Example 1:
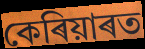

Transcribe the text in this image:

কেৰিয়াৰত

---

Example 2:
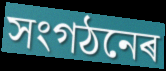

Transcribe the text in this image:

সংগঠনেৰ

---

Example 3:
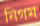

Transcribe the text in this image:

নিগম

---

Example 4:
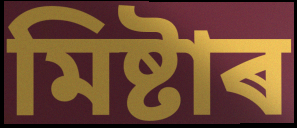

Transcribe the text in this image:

মিষ্টাৰ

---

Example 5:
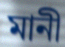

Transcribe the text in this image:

মানী